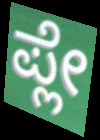
ಪ್ಲೇ